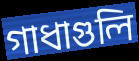
গাধাগুলি